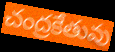
చంద్రకేతువు